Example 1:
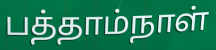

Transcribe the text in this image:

பத்தாம்நாள்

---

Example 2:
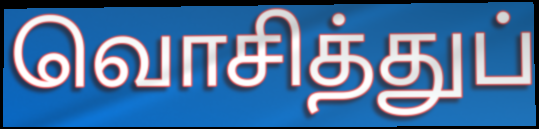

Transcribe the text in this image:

வொசித்துப்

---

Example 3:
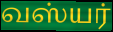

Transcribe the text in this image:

வஸ்யர்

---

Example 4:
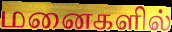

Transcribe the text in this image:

மனைகளில்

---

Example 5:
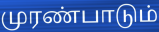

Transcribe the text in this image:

முரண்பாடும்